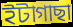
ইটাগাছা